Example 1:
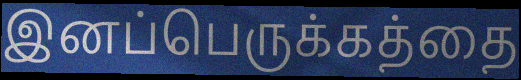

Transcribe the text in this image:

இனப்பெருக்கத்தை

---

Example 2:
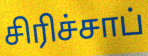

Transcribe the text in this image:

சிரிச்சாப்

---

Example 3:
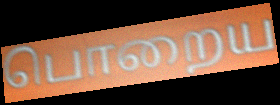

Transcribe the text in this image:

பொறைய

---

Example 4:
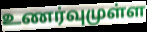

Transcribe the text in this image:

உணர்வுமுள்ள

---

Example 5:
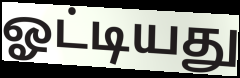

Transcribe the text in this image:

ஓட்டியது